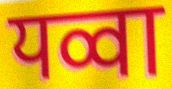
यव्वा